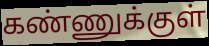
கண்ணுக்குள்